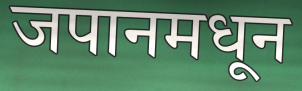
जपानमधून